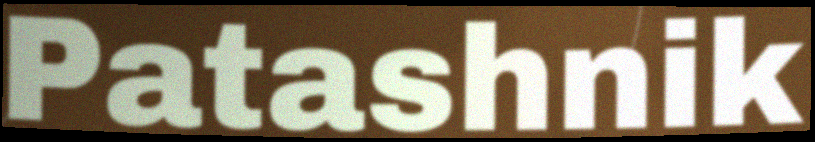
Patashnik